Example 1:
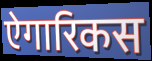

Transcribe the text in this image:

ऐगारिकस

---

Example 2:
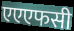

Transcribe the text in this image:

एएएफसी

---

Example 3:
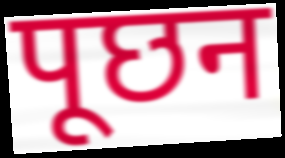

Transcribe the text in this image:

पूछन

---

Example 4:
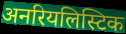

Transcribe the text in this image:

अनरियलिस्टिक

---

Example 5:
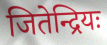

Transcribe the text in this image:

जितेन्द्रियः